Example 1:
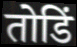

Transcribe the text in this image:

तोडिं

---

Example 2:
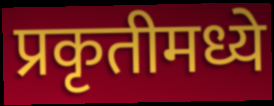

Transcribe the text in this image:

प्रकृतीमध्ये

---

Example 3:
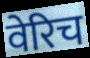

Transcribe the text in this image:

वेरिच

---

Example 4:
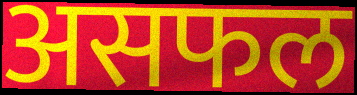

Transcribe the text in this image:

असफल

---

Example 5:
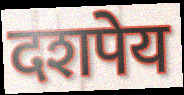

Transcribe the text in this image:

दशपेय